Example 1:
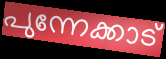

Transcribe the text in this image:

പുന്നേക്കാട്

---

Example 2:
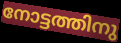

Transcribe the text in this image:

നോട്ടത്തിനു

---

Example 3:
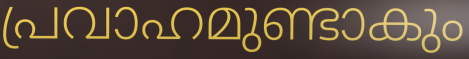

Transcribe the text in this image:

പ്രവാഹമുണ്ടാകും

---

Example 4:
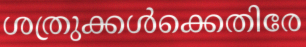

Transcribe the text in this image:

ശത്രുക്കൾക്കെതിരേ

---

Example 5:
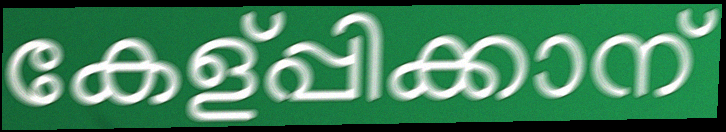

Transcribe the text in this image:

കേള്പ്പിക്കാന്